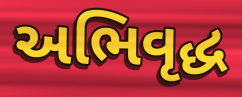
અભિવૃદ્ધ